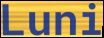
Luni